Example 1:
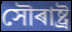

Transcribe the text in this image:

সৌৰাষ্ট্ৰ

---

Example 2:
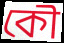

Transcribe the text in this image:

কৌ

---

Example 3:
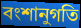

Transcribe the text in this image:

বংশানুগতি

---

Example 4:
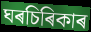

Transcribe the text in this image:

ঘৰচিৰিকাৰ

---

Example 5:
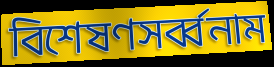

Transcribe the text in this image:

বিশেষণসৰ্ব্বনাম